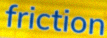
friction